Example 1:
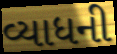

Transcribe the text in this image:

વ્યાધની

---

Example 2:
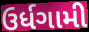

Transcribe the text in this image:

ઉર્ધગામી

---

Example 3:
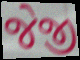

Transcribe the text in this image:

જેજી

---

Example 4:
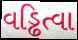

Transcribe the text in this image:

વડ્ઢિત્વા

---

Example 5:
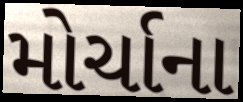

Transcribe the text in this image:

મોર્ચાના